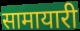
सामायारी